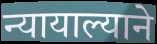
न्यायाल्याने